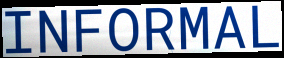
INFORMAL